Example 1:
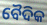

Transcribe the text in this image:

ବୈଦିକ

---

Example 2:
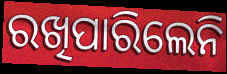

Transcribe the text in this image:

ରଖିପାରିଲେନି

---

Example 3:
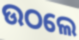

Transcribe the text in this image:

ଉଠଲେ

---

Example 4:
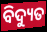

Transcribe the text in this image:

ବିଦ୍ୟୁତ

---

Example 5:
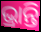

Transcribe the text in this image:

ଭ୍ରାନ୍ତି